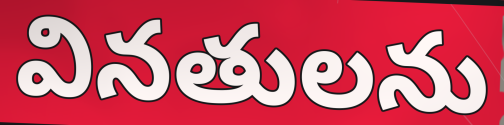
వినతులను